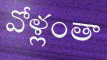
వోళ్లంతా